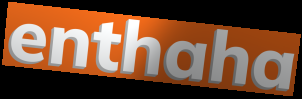
enthaha